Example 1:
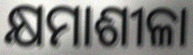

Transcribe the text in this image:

କ୍ଷମାଶୀଳା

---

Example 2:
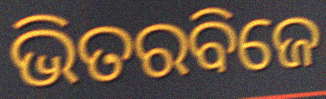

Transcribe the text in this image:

ଭିତରବିଜେ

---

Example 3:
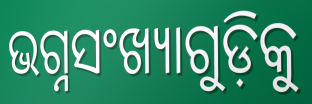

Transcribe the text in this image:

ଭଗ୍ନସଂଖ୍ୟାଗୁଡ଼ିକୁ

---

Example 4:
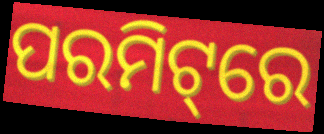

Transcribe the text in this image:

ପରମିଟ୍‌ରେ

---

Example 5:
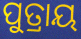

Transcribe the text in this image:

ପୁତ୍ରାୟ